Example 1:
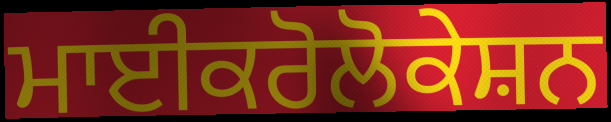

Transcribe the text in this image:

ਮਾਈਕਰੋਲੋਕੇਸ਼ਨ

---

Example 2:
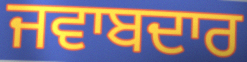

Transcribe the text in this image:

ਜਵਾਬਦਾਰ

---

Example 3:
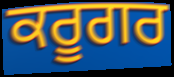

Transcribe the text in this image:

ਕਰੂਗਰ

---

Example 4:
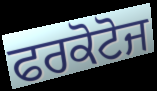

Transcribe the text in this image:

ਫਰਕੋਟੋਜ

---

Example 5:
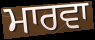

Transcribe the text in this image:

ਮਾਰਵਾ